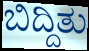
ಬಿದ್ದಿತು